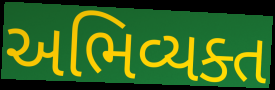
અભિવ્યક્ત